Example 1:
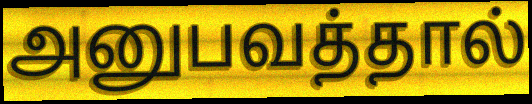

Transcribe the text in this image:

அனுபவத்தால்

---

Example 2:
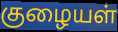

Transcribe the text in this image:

குழையள்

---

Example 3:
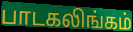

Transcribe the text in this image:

பாடகலிங்கம்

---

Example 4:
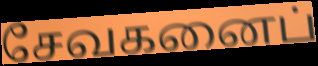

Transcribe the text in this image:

சேவகனைப்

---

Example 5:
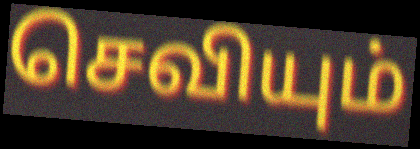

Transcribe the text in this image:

செவியும்